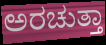
ಅರಚುತ್ತಾ